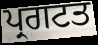
ਪ੍ਰਗਟਤ